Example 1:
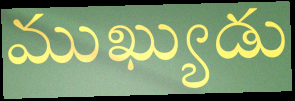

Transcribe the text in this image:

ముఖ్యుడు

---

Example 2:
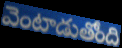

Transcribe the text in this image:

వెంటాడుతోంది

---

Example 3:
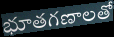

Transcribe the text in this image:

భూతగణాలతో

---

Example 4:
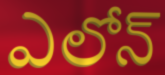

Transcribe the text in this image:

ఎలోన్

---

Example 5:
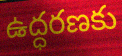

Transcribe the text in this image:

ఉద్ధరణకు